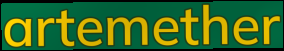
artemether